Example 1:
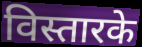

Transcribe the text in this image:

विस्तारके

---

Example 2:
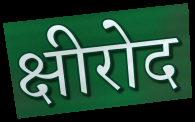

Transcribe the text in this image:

क्षीरोद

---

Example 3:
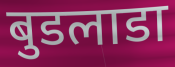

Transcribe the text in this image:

बुडलाडा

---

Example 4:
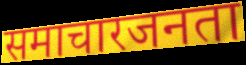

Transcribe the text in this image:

समाचारजनता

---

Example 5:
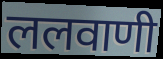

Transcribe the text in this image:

ललवाणी